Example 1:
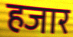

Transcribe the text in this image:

हजार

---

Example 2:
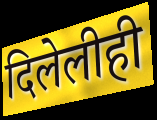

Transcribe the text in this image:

दिलेलीही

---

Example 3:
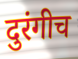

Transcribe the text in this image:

दुरंगीच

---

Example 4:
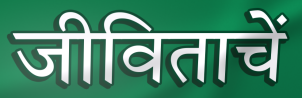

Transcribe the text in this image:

जीविताचें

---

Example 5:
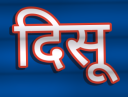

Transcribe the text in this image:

दिसू